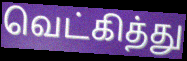
வெட்கித்து